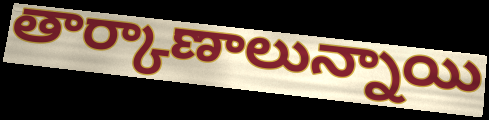
తార్కాణాలున్నాయి